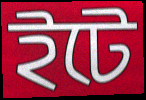
ইটে